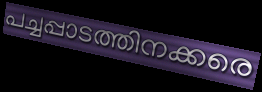
പച്ചപ്പാടത്തിനക്കരെ